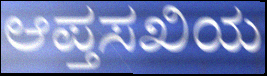
ಆಪ್ತಸಖಿಯ